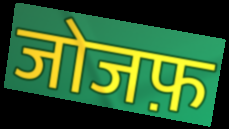
जोजफ़